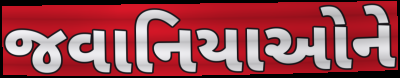
જવાનિયાઓને